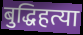
बुद्धिहत्या